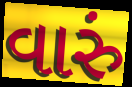
વારું